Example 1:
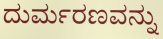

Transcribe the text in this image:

ದುರ್ಮರಣವನ್ನು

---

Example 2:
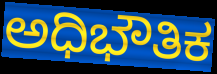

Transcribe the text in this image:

ಅಧಿಭೌತಿಕ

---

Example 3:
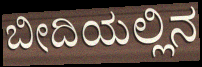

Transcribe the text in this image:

ಬೀದಿಯಲ್ಲಿನ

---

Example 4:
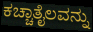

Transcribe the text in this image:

ಕಚ್ಚಾತೈಲವನ್ನು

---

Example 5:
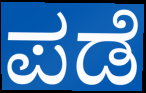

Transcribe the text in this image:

ಪಡೆ